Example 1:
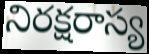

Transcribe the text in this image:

నిరక్షరాస్య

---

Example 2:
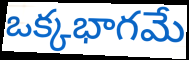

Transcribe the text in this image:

ఒక్కభాగమే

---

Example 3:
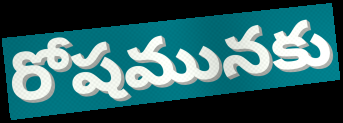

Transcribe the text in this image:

రోషమునకు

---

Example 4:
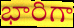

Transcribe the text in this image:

భారిగా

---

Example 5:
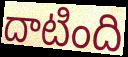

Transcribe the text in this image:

దాటింది